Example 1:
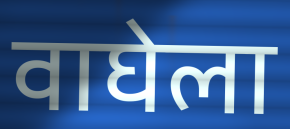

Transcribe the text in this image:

वाघेला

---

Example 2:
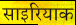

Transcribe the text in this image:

साइरियाक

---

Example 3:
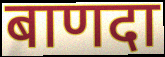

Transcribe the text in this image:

बाणदा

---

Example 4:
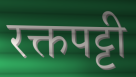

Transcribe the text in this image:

रक्तपट्टी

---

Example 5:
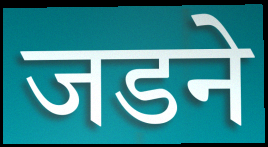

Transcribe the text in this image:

जडने